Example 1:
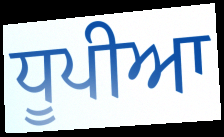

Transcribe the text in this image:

ਧੂਪੀਆ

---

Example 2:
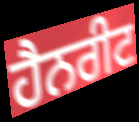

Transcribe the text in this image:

ਹੈਨਰੀਟ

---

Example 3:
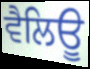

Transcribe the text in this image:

ਵੈਲਿਊ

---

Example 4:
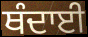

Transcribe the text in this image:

ਥੰਦਾਈ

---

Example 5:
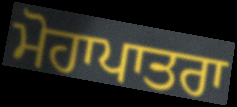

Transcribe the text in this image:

ਮੋਹਾਪਾਤਰਾ